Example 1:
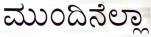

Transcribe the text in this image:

ಮುಂದಿನೆಲ್ಲಾ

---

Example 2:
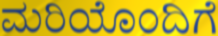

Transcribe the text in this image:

ಮರಿಯೊಂದಿಗೆ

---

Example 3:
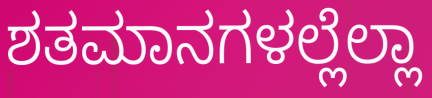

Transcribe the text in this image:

ಶತಮಾನಗಳಲ್ಲೆಲ್ಲಾ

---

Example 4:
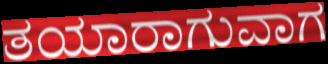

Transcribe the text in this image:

ತಯಾರಾಗುವಾಗ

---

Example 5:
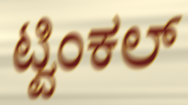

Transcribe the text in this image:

ಟ್ವಿಂಕಲ್